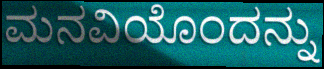
ಮನವಿಯೊಂದನ್ನು